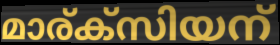
മാര്ക്സിയന്